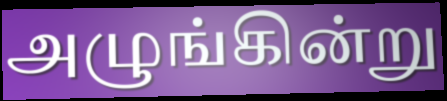
அழுங்கின்று